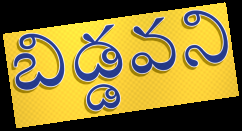
బిడ్డవని